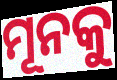
ମୂନକୁ